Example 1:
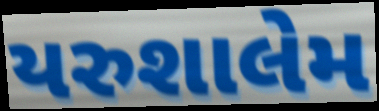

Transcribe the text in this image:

યરુશાલેમ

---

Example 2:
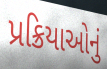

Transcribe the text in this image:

પ્રક્રિયાઓનું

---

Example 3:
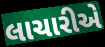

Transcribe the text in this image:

લાચારીએ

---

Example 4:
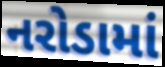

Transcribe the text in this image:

નરોડામાં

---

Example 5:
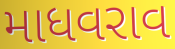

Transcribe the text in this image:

માધવરાવ